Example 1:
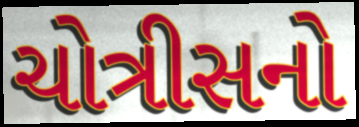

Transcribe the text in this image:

ચોત્રીસનો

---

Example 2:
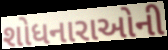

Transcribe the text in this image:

શોધનારાઓની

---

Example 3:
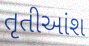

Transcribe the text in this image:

તૃતીઆંશ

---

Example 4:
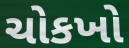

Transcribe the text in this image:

ચોકખો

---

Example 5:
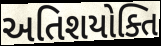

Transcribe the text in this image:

અતિશયોક્તિ